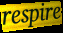
respire